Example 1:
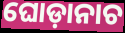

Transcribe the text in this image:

ଘୋଡ଼ାନାଚ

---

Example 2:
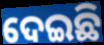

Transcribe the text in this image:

ଦେଇଛି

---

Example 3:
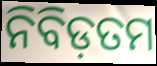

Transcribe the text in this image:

ନିବିଡ଼ତମ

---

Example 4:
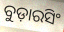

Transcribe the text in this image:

ବୁଡ଼ାରସିଂ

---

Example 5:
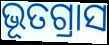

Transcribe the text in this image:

ଭୂତଗ୍ରାସ